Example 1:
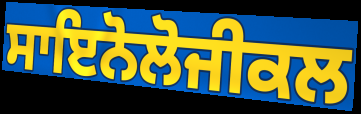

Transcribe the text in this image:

ਸਾਇਨੋਲੋਜੀਕਲ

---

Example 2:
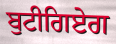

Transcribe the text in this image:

ਬੁਟੀਗਿਏਗ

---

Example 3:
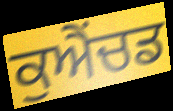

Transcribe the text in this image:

ਕੁਐਂਚਡ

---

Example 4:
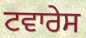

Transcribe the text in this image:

ਟਵਾਰੇਸ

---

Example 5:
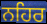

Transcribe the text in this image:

ਨਹਿਰ